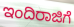
ಇಂದಿರಾಜಿಗೆ